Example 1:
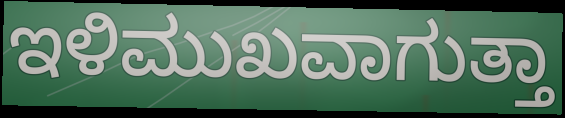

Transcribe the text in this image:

ಇಳಿಮುಖವಾಗುತ್ತಾ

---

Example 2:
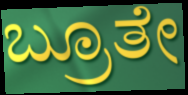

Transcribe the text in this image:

ಬ್ರೂತೇ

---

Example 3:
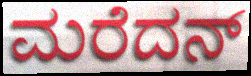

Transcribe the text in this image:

ಮರೆದನ್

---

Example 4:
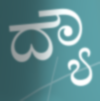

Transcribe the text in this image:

ದ್ಯೌ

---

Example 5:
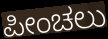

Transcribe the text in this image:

ಪೀಂಚಲು